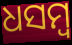
ଧସମ୍ବ